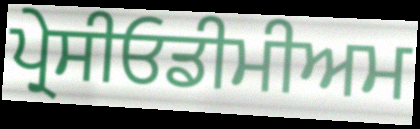
ਪ੍ਰੇਸੀਓਡੀਮੀਅਮ